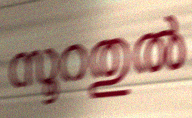
സൂറതുൽ